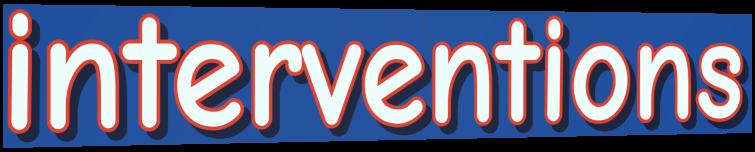
interventions